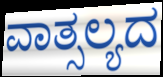
ವಾತ್ಸಲ್ಯದ